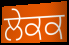
ਲੇਕਕ